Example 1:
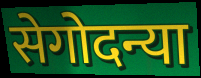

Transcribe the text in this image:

सेगोदन्या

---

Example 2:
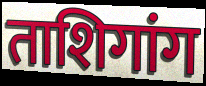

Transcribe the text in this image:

ताशिगांग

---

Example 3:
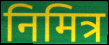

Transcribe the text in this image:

निमित्र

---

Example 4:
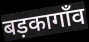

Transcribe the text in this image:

बड़कागाँव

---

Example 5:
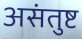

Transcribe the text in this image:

असंतुष्ट